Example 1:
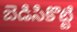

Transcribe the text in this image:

బెడిసికొట్టి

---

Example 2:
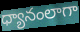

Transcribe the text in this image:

ధ్యానంలాగా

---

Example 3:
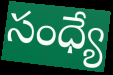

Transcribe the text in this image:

సంధ్యే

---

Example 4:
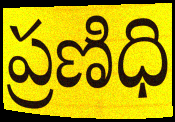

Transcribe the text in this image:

ప్రణిధి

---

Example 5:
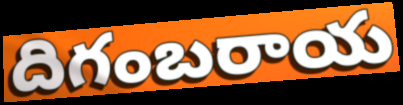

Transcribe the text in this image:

దిగంబరాయ